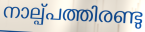
നാല്പ്പത്തിരണ്ടു